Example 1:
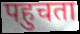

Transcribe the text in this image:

पहुचता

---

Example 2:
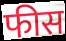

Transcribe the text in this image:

फीस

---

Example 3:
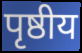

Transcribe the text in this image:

पृष्ठीय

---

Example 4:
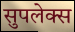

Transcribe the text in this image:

सुपलेक्स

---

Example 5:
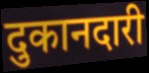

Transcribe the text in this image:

दुकानदारी